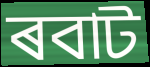
ৰবাট